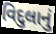
વિદુલાનું